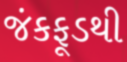
જંકફૂડથી